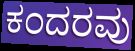
ಕಂದರವು